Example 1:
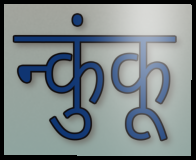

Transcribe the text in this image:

न्कुंकू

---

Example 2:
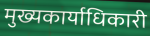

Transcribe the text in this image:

मुख्यकार्याधिकारी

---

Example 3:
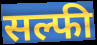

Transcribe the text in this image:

सल्फी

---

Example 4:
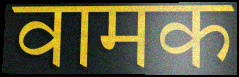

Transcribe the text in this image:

वामक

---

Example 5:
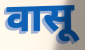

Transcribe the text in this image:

वासू